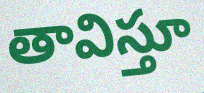
తావిస్తూ